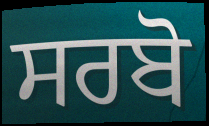
ਸਰਬੋ